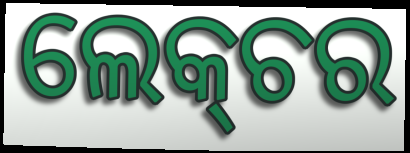
ଲେକ୍‍ଚର